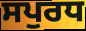
ਸਪੁਰਧ